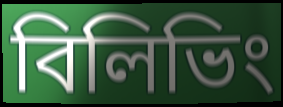
বিলিভিং